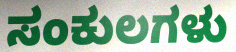
ಸಂಕುಲಗಳು